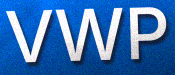
VWP